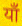
याँ